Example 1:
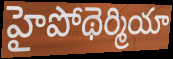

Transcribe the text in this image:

హైపోథెర్మియా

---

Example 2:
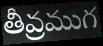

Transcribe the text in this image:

తీవ్రముగ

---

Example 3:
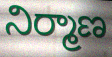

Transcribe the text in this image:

నిర్మాణ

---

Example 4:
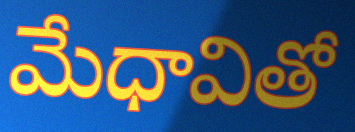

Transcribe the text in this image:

మేధావితో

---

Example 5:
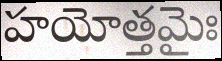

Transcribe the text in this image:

హయోత్తమైః